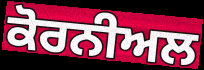
ਕੋਰਨੀਅਲ